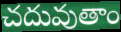
చదువుతాం